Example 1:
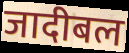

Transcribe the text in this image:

जादीबल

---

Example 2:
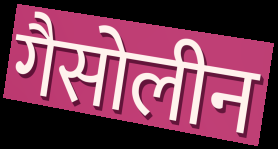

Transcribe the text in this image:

गैसोलीन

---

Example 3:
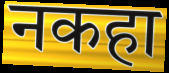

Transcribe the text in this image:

नकहा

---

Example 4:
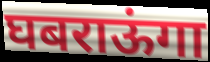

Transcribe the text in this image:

घबराऊंगा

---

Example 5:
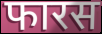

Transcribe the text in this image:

फारस